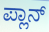
ಪ್ಲಾನ್